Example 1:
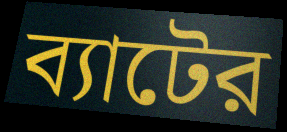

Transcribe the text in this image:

ব্যাটের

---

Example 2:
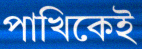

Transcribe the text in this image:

পাখিকেই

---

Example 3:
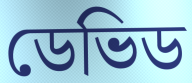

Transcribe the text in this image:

ডেভিড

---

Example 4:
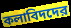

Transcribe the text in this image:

কলাবিদদের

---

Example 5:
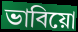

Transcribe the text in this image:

ভাবিয়ো